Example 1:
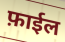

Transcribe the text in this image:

फ़ाईल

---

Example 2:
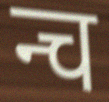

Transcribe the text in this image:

न्च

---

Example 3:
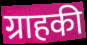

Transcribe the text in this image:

ग्राहकी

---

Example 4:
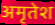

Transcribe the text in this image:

अमृतेश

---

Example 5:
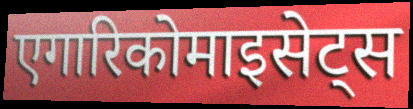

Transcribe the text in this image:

एगारिकोमाइसेट्स